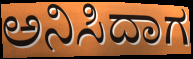
ಅನಿಸಿದಾಗ